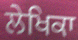
ਲੇਖਿਕਾ